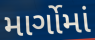
માર્ગોમાં